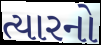
ત્યારનો